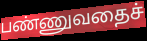
பண்ணுவதைச்